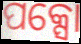
ପକ୍ସୋ